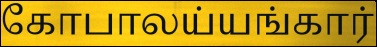
கோபாலய்யங்கார்